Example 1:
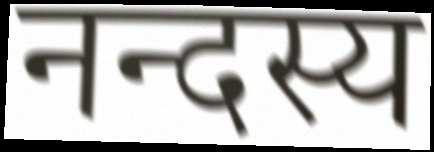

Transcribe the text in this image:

नन्दस्य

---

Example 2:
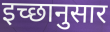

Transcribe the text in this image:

इच्‍छानुसार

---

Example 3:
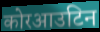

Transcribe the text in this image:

कोरआउटिन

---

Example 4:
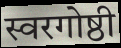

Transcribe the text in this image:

स्वरगोष्ठी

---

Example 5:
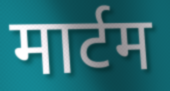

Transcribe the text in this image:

मार्टम